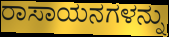
ರಾಸಾಯನಗಳನ್ನು